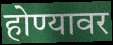
होण्यावर